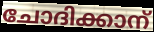
ചോദിക്കാന്